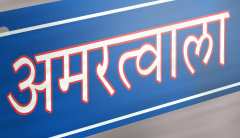
अमरत्वाला